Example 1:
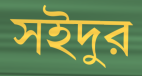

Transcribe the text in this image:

সইদুর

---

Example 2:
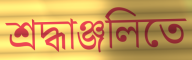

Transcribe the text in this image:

শ্রদ্ধাঞ্জলিতে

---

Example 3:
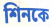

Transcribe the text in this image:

শিনকে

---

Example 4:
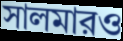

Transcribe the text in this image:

সালমারও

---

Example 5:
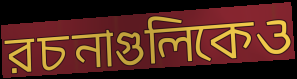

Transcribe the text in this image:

রচনাগুলিকেও